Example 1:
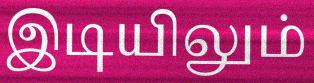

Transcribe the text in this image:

இடியிலும்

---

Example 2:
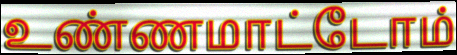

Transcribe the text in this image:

உண்ணமாட்டோம்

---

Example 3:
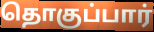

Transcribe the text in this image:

தொகுப்பார்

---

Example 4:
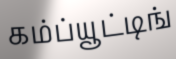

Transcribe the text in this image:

கம்ப்யூட்டிங்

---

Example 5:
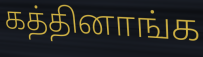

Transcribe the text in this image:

கத்தினாங்க